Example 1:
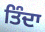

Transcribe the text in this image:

ਤਿੰਦਾ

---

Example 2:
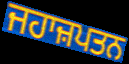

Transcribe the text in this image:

ਜਹਾਜ਼ਪਤਨ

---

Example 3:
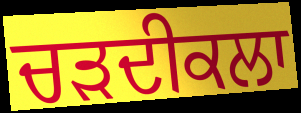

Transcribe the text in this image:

ਚੜਦੀਕਲਾ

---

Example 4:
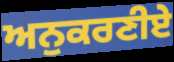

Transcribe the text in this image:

ਅਨੁਕਰਣੀਏ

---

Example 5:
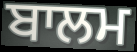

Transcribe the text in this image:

ਬਾਲਮ